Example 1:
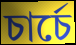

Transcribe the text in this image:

চার্চে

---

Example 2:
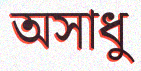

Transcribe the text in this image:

অসাধু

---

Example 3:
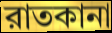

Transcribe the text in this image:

রাতকানা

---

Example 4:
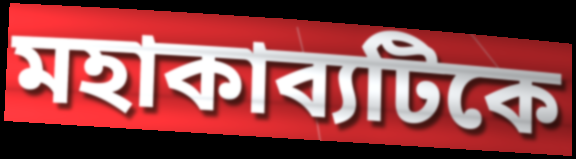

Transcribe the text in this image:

মহাকাব্যটিকে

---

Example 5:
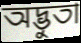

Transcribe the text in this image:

অদ্ভুতা